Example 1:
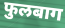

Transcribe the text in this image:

फुलबाग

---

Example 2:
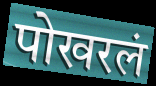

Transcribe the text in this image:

पोखरलं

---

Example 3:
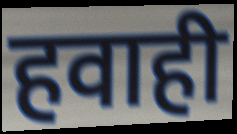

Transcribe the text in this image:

हवाही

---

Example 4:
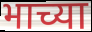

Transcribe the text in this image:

भाच्या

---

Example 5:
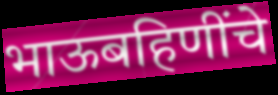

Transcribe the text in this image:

भाऊबहिणींचे